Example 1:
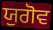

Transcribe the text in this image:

ਯੁਗੋਵ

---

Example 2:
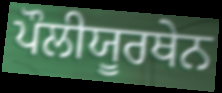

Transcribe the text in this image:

ਪੌਲੀਯੂਰਥੇਨ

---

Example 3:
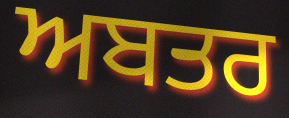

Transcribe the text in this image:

ਅਬਤਰ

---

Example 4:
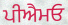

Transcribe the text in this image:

ਪੀਐਮਓ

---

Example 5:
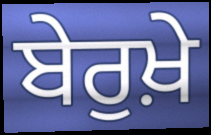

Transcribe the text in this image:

ਬੇਰੁਖ਼ੇ